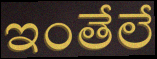
ఇంతేలే